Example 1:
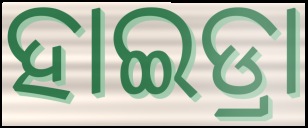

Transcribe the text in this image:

ହାଇଡ୍ରା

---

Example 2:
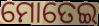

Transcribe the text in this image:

ମୋତେଇ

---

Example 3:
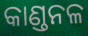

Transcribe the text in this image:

କାଣ୍ଡନଳ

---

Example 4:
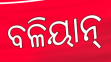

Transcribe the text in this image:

ବଳିୟାନ୍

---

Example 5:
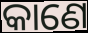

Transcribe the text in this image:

କାଣେ